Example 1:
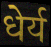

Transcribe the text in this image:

धेर्य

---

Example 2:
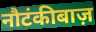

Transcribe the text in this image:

नौटंकीबाज़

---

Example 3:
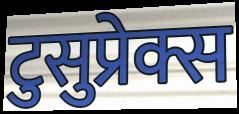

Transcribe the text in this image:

टुसुप्रेक्स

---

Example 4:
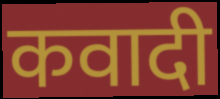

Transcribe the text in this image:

कवादी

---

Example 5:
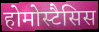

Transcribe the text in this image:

होमोस्टैसिस